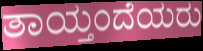
ತಾಯ್ತಂದೆಯರು